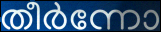
തീർന്നോ